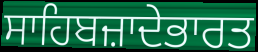
ਸਾਹਿਬਜ਼ਾਦੇਭਾਰਤ